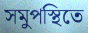
সমুপস্থিতে